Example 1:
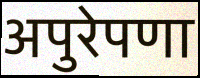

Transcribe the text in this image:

अपुरेपणा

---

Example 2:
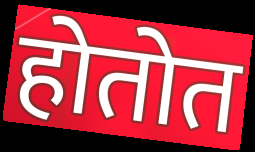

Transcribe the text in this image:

होतोत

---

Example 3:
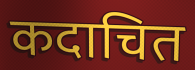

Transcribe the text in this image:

कदाचित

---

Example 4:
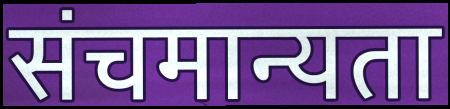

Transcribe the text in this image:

संचमान्यता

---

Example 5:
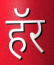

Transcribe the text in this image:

हॅर